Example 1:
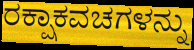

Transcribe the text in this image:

ರಕ್ಷಾಕವಚಗಳನ್ನು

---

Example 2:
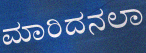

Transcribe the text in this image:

ಮಾರಿದನಲಾ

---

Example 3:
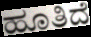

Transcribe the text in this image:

ಹೂತಿದೆ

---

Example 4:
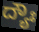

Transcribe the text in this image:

ದ್ಯೌಃ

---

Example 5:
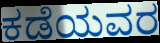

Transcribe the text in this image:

ಕಡೆಯವರ